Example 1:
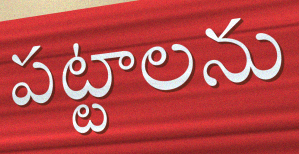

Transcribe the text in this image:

పట్టాలను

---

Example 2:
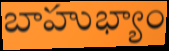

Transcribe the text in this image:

బాహుభ్యాం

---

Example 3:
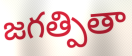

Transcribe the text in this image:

జగత్పితా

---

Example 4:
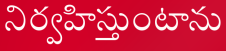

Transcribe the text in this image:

నిర్వహిస్తుంటాను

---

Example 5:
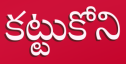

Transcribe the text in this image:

కట్టుకోని